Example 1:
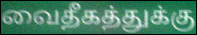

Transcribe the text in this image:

வைதீகத்துக்கு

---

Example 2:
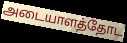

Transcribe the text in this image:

அடையாளத்தோட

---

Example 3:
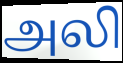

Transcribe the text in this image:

அலி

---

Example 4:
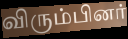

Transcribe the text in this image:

விரும்பினர்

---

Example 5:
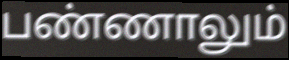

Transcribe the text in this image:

பண்ணாலும்